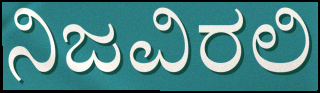
ನಿಜವಿರಲಿ